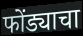
फोंड्याचा